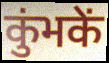
कुंभकें